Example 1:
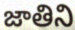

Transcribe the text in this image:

జాతిని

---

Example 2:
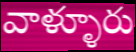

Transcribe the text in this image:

వాళ్ళూరు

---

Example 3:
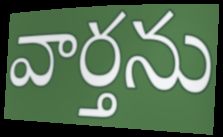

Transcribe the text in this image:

వార్తను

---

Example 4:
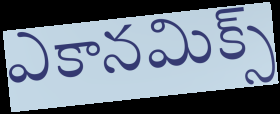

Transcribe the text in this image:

ఎకానమిక్స్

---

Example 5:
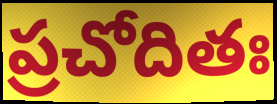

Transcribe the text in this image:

ప్రచోదితః